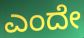
ಎಂದೇ